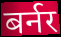
बर्नर